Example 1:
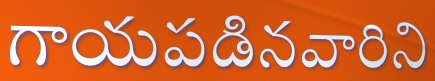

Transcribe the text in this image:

గాయపడినవారిని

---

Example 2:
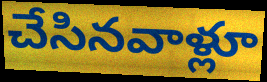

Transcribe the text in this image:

చేసినవాళ్లూ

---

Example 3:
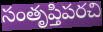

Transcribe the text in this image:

సంతృప్తిపరచి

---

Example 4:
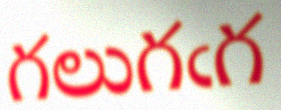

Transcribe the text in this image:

గలుగఁగ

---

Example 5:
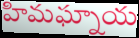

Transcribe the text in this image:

హిమఘ్నాయ